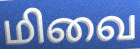
மிவை